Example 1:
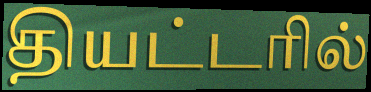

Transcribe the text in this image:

தியட்டரில்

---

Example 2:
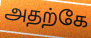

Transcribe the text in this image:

அதற்கே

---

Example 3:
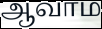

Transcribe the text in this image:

ஆவாம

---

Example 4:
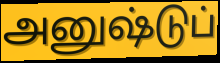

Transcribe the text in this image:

அனுஷ்டுப்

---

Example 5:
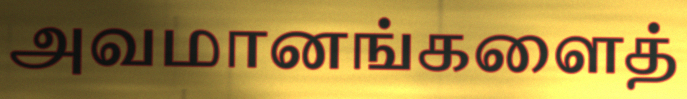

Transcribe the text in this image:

அவமானங்களைத்